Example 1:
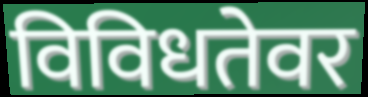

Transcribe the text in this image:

विविधतेवर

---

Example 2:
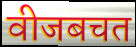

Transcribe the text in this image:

वीजबचत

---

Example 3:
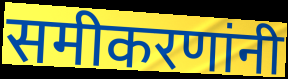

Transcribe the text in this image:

समीकरणांनी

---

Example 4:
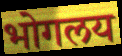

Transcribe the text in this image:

भोगलय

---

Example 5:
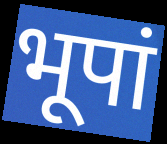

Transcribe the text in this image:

भूपां